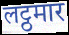
लट्ठमार